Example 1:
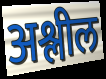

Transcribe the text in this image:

अश्लील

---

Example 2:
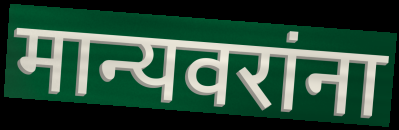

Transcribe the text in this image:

मान्यवरांना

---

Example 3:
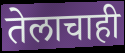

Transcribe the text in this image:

तेलाचाही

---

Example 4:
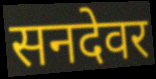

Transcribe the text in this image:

सनदेवर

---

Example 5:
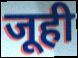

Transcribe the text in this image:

जूही